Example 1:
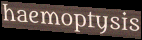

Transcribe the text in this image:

haemoptysis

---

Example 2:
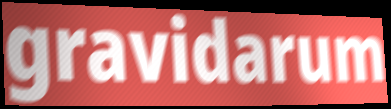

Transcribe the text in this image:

gravidarum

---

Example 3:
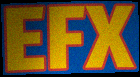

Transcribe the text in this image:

EFX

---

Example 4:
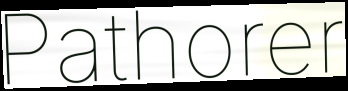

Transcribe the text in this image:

Pathorer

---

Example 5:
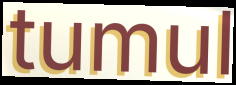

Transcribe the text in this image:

tumul